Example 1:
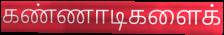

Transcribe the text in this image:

கண்ணாடிகளைக்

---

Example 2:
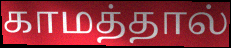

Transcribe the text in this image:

காமத்தால்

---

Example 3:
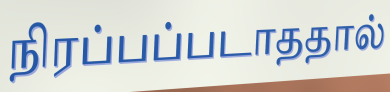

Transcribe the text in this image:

நிரப்பப்படாததால்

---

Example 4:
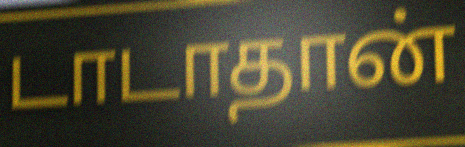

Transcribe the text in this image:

டாடாதான்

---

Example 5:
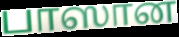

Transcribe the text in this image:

பாஸான